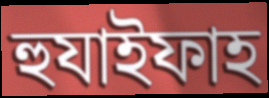
হুযাইফাহ